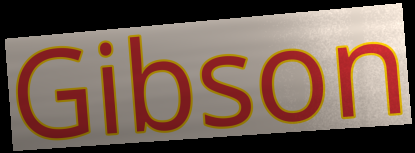
Gibson